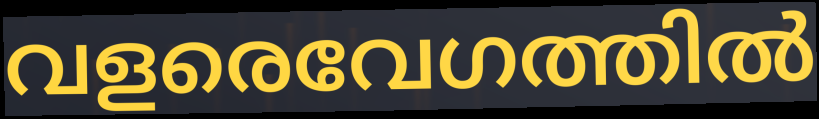
വളരെവേഗത്തിൽ